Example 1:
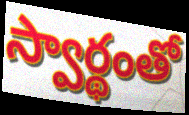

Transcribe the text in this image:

స్వార్థంతో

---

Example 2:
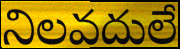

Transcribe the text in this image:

నిలవదులే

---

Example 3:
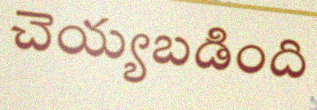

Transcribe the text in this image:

చెయ్యబడింది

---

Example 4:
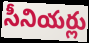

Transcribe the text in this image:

సీనియర్లు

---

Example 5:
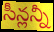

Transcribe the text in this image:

సీన్లన్నీ